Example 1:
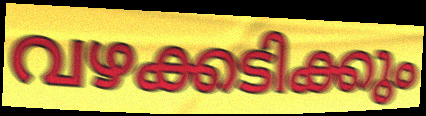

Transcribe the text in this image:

വഴക്കടിക്കും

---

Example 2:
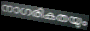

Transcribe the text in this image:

നാഗരികതയും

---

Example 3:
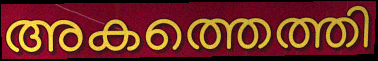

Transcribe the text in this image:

അകത്തെത്തി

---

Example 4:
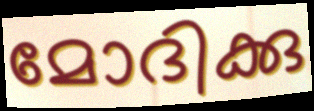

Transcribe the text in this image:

മോദിക്കു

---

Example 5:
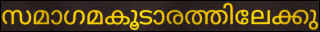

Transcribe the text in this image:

സമാഗമകൂടാരത്തിലേക്കു